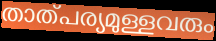
താത്പര്യമുള്ളവരും